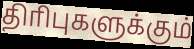
திரிபுகளுக்கும்